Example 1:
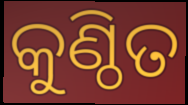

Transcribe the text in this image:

କୁଣ୍ଠିତ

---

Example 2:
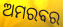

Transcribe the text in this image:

ଅମରବର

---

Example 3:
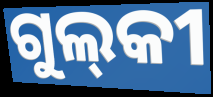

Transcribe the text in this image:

ଗୁଲ୍‌କୀ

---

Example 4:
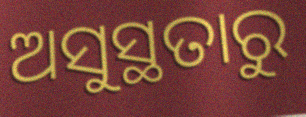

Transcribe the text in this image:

ଅସୁସ୍ଥତାରୁ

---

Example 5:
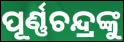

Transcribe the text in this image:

ପୂର୍ଣ୍ଣଚନ୍ଦ୍ରଙ୍କୁ